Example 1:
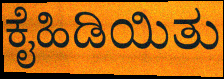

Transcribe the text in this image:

ಕೈಹಿಡಿಯಿತು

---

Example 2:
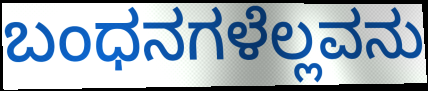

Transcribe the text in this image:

ಬಂಧನಗಳೆಲ್ಲವನು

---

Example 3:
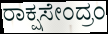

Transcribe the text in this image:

ರಾಕ್ಷಸೇಂದ್ರಂ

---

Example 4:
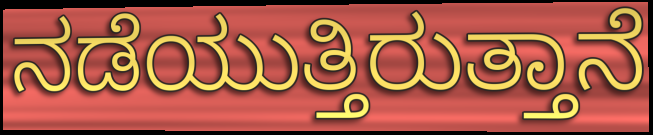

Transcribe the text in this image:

ನಡೆಯುತ್ತಿರುತ್ತಾನೆ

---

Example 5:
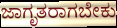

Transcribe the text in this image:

ಜಾಗೃತರಾಗಬೇಕು